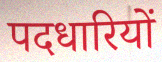
पदधारियों